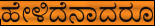
ಹೇಳಿದೆನಾದರೂ